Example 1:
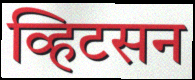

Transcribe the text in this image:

व्हिटसन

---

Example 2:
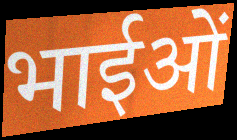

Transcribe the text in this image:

भाईओं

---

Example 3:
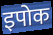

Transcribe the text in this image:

इपोक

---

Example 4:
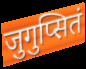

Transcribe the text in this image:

जुगुप्सितं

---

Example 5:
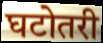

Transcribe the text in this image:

घटोतरी